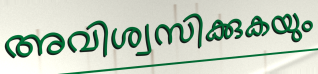
അവിശ്വസിക്കുകയും